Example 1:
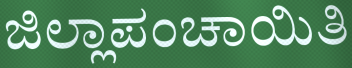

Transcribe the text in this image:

ಜಿಲ್ಲಾಪಂಚಾಯಿತಿ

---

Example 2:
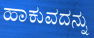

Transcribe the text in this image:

ಹಾಕುವದನ್ನು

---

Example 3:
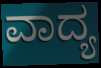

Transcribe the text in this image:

ವಾದ್ಯ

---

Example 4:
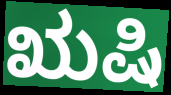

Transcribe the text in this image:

ಋಷಿ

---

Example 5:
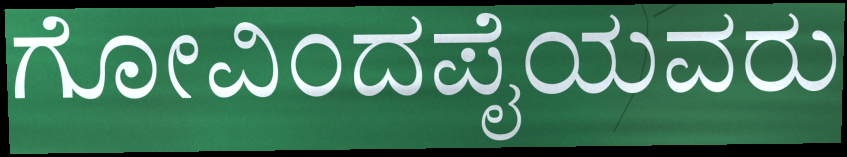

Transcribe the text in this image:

ಗೋವಿಂದಪೈಯವರು